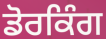
ਡੋਰਕਿੰਗ